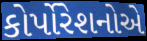
કોર્પોરેશનોએ